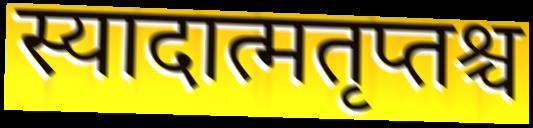
स्यादात्मतृप्तश्च